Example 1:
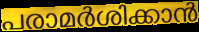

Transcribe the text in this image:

പരാമർശിക്കാൻ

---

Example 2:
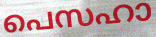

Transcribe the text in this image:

പെസഹാ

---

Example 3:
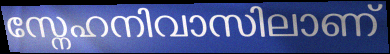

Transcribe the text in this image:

സ്നേഹനിവാസിലാണ്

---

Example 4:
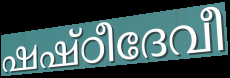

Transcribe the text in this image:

ഷഷ്ഠീദേവീ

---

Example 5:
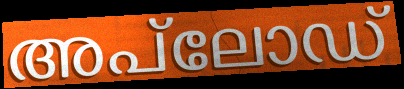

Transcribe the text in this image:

അപ്‌ലോഡ്